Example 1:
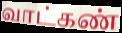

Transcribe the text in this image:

வாட்கண்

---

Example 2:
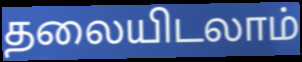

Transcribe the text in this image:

தலையிடலாம்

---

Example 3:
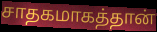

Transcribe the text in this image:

சாதகமாகத்தான்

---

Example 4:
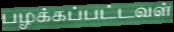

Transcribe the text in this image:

பழக்கப்பட்டவள்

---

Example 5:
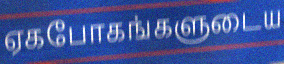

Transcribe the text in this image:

ஏகபோகங்களுடைய